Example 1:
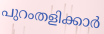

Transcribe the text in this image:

പുറംതളിക്കാർ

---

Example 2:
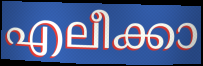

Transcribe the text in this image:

എലീക്കാ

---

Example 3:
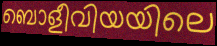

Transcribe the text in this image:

ബൊളീവിയയിലെ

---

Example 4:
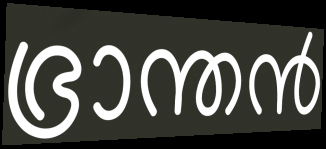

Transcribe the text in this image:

ഭ്രാന്തൻ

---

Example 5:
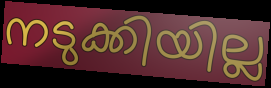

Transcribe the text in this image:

നടുക്കിയില്ല